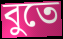
বুতে